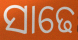
ସାଢେ